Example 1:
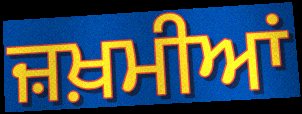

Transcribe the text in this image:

ਜ਼ਖ਼ਮੀਆਂ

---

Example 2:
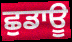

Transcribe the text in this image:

ਛੁਡਾਊ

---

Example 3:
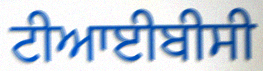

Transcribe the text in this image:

ਟੀਆਈਬੀਸੀ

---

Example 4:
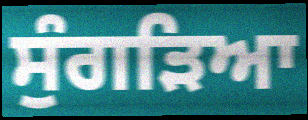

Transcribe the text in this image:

ਸੁੰਗੜਿਆ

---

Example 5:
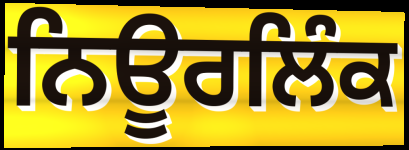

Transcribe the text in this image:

ਨਿਊਰਲਿੰਕ